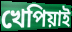
খেপিয়াই